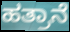
ಹತ್ರಾನೆ